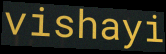
vishayi